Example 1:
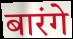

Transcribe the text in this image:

बारंगे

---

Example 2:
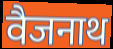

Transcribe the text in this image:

वैजनाथ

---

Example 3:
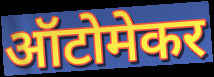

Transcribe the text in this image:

ऑटोमेकर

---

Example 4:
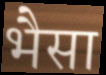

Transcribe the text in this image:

भैसा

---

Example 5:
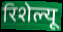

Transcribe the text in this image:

रिशेल्यू